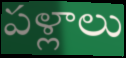
పళ్లాలు